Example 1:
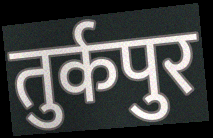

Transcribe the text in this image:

तुर्कपुर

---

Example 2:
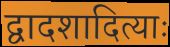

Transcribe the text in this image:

द्वादशादित्याः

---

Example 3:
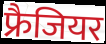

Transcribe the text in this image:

फ्रैजियर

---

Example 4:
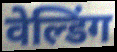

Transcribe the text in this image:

वेल्डिंग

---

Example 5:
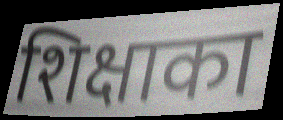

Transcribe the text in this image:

शिक्षाका